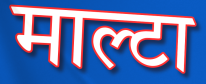
माल्टा